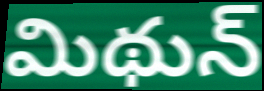
మిథున్